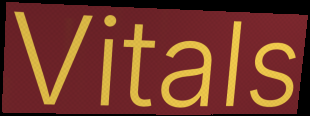
Vitals